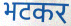
भटकर